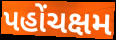
પહોંચક્ષમ